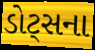
ડોટ્સના